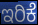
ಇರಿಕೆ